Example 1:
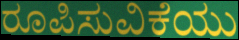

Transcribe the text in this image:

ರೂಪಿಸುವಿಕೆಯು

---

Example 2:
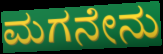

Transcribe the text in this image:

ಮಗನೇನು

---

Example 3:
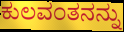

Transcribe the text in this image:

ಕುಲವಂತನನ್ನು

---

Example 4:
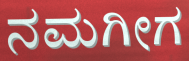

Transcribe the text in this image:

ನಮಗೀಗ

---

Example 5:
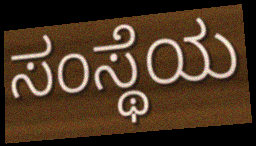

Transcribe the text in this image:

ಸಂಸ್ಥೆಯ